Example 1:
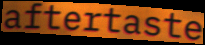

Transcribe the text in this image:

aftertaste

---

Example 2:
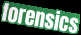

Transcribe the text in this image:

forensics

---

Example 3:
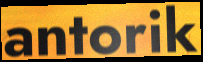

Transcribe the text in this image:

antorik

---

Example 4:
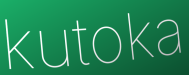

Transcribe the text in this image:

kutoka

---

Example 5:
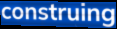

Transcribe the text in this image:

construing